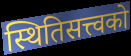
स्थितिसत्त्वको